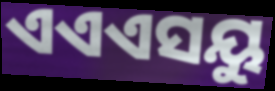
ଏଏଏସୟୁ